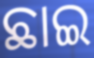
ଛାଇ